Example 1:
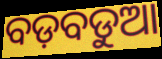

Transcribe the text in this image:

ବଡ଼ବଡୁଆ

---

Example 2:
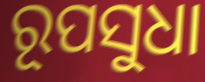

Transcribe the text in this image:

ରୂପସୁଧା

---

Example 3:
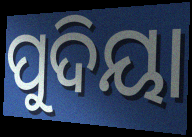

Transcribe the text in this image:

ପୁଦିୟା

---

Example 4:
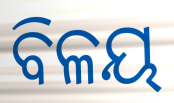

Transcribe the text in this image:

ବିଳୟ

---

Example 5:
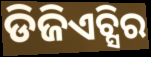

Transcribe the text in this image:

ଡିଜିଏଚ୍ସିର